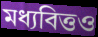
মধ্যবিত্তও